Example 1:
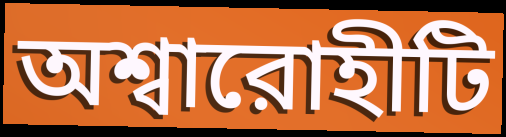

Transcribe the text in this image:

অশ্বারোহীটি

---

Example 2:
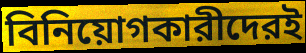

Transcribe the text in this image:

বিনিয়োগকারীদেরই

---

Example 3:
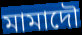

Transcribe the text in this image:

মামাদৌ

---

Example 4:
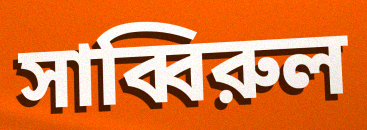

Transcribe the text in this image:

সাব্বিরুল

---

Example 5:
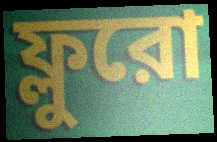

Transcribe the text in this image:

ফ্লুরো